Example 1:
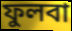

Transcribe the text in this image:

ফুলবা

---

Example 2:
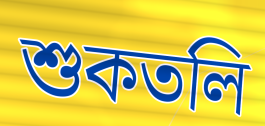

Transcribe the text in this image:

শুকতলি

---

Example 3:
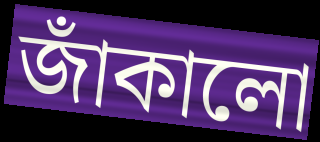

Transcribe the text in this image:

জাঁকালো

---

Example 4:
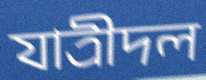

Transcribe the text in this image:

যাত্রীদল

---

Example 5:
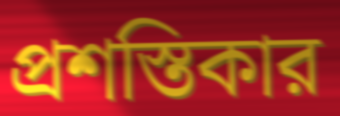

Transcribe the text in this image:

প্রশস্তিকার